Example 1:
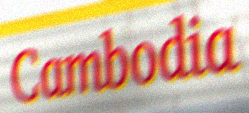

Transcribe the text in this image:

Cambodia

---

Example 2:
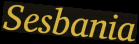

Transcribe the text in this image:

Sesbania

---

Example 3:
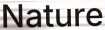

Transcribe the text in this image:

Nature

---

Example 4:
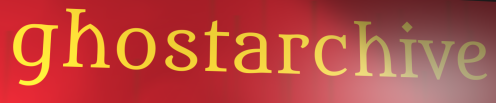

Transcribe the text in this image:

ghostarchive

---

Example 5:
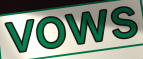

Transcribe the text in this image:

vows